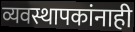
व्यवस्थापकांनाही